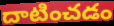
దాటించడం